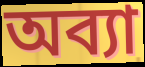
অব্যা